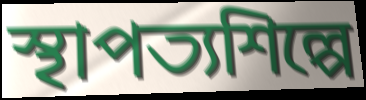
স্থাপত্যশিল্পে